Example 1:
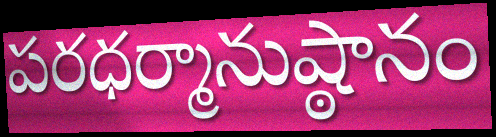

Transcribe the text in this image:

పరధర్మానుష్ఠానం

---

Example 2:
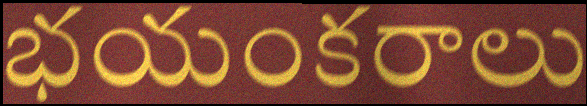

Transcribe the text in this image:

భయంకరాలు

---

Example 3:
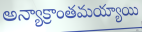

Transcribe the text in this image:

అన్యాక్రాంతమయ్యాయి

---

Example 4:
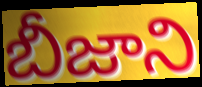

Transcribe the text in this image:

బీజాని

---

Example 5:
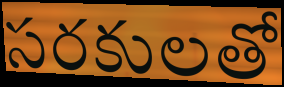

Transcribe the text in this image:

సరకులతో